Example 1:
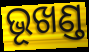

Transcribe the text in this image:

ଭୂଖଣ୍ଡ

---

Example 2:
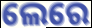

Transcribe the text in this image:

ଲେରେ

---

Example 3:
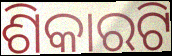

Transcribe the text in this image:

ଶିକାରଟି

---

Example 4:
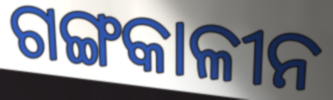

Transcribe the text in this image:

ଗଙ୍ଗକାଳୀନ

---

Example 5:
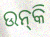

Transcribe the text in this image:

ଉନ୍‌କି